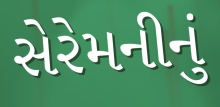
સેરેમનીનું